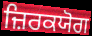
ਜ਼ਿਰਕਯੋਗ